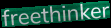
freethinker